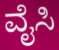
ವೈಸಿ